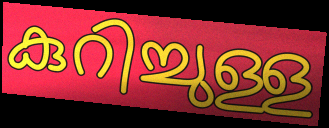
കുറിച്ചുള്ള